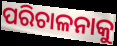
ପରିଚାଳନାକୁ